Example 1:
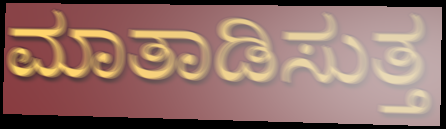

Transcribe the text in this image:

ಮಾತಾಡಿಸುತ್ತ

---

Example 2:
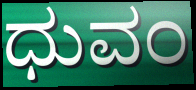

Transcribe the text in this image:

ಧುವಂ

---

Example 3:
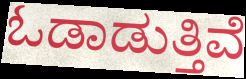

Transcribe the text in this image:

ಓಡಾಡುತ್ತಿವೆ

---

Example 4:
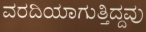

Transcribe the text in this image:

ವರದಿಯಾಗುತ್ತಿದ್ದವು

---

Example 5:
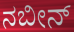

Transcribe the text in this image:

ನಬೀನ್